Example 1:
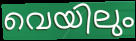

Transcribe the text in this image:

വെയിലും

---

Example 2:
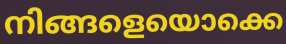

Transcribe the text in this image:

നിങ്ങളെയൊക്കെ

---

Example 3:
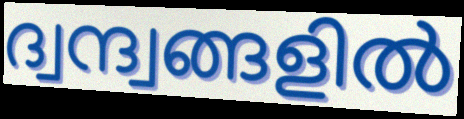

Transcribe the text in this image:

ദ്വന്ദ്വങ്ങളിൽ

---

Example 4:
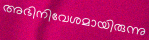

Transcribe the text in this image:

അഭിനിവേശമായിരുന്നു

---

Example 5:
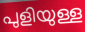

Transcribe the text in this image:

പുളിയുള്ള